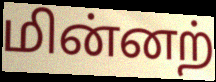
மின்னற்